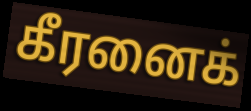
கீரனைக்